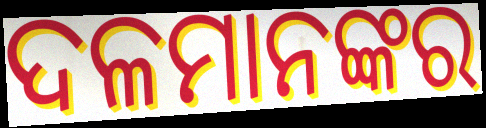
ଦଳମାନଙ୍କର